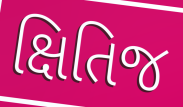
ક્ષિતિજ